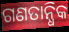
ଗଣତାନ୍ଧିକ